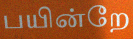
பயின்றே